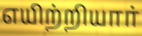
எயிற்றியார்